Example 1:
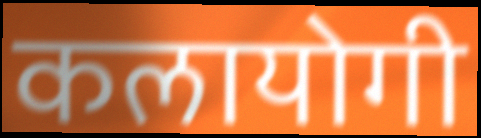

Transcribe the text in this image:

कलायोगी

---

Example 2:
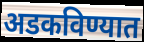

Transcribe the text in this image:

अडकविण्यात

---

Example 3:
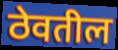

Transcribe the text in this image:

ठेवतील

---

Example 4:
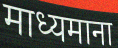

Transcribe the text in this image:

माध्यमाना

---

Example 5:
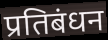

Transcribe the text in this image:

प्रतिबंधन